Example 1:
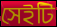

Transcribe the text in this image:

সেইটি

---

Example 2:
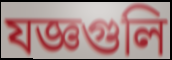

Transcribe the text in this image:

যজ্ঞগুলি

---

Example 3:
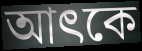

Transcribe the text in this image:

আৎকে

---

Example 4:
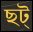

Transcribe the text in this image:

ছট্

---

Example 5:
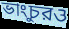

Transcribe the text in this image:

ভাংচুরও